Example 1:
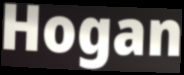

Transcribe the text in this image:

Hogan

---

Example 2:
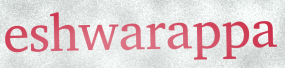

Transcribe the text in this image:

eshwarappa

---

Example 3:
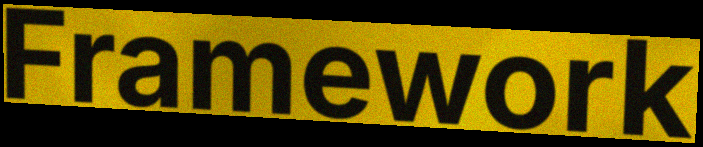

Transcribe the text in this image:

Framework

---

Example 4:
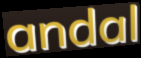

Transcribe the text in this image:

andal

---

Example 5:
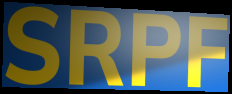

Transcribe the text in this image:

SRPF